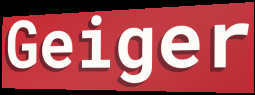
Geiger